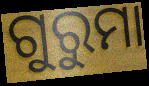
ଗୁରୁମା